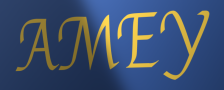
AMEY